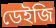
ডেইজি